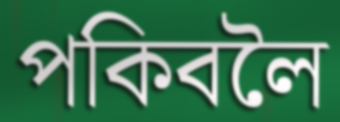
পকিবলৈ